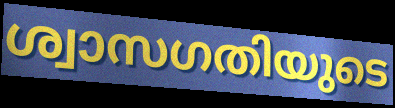
ശ്വാസഗതിയുടെ